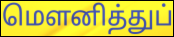
மெளனித்துப்